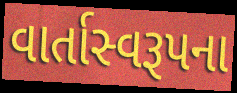
વાર્તાસ્વરૂપના